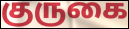
குருகை